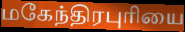
மகேந்திரபுரியை